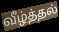
வீழ்த்தல்